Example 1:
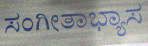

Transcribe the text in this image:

ಸಂಗೀತಾಭ್ಯಾಸ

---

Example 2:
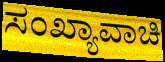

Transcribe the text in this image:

ಸಂಖ್ಯಾವಾಚಿ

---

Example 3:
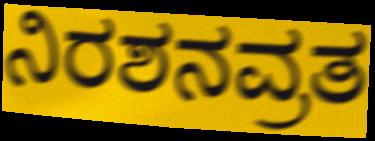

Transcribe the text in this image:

ನಿರಶನವ್ರತ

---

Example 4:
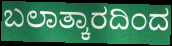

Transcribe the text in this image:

ಬಲಾತ್ಕಾರದಿಂದ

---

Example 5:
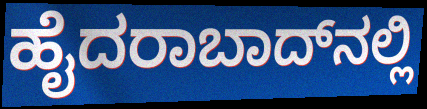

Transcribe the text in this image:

ಹೈದರಾಬಾದ್‌ನಲ್ಲಿ